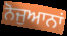
ਨੋਜੁਆਨਾਂ